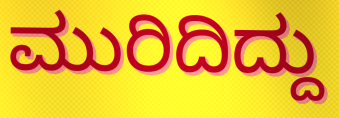
ಮುರಿದಿದ್ದು